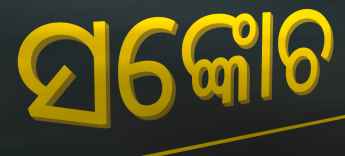
ସଙ୍କୋଚ